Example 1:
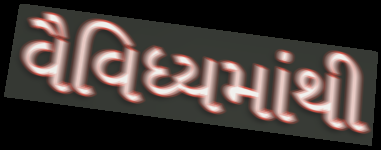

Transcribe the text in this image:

વૈવિધ્યમાંથી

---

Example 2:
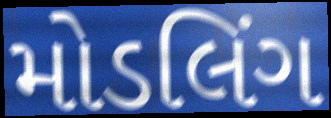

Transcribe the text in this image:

મોડલિંગ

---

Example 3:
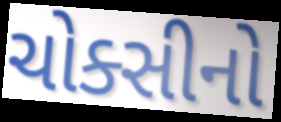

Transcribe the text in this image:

ચોક્સીનો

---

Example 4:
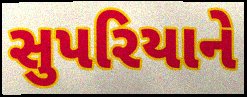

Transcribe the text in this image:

સુપરિયાને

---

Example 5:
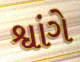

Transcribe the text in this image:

શ્વાંગે